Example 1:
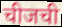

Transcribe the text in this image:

चीजची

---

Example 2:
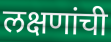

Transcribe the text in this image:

लक्षणांची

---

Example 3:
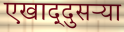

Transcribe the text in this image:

एखाद्‌दुसऱ्या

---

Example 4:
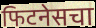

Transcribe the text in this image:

फिटनेसचा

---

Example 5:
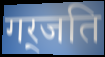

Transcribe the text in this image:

गर्जति